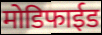
मोडिफाईड